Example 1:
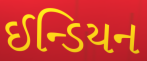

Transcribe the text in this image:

ઈન્ડિયન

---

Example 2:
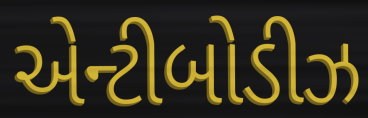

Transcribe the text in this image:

એન્ટીબોડીઝ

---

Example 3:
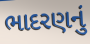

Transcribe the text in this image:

ભાદરણનું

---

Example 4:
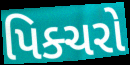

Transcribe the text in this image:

પિક્ચરો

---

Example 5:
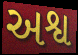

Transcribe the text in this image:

અશ્વ